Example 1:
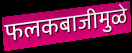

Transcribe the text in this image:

फलकबाजीमुळे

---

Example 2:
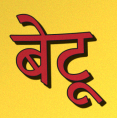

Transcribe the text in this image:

बेटू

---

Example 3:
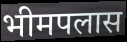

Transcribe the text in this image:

भीमपलास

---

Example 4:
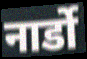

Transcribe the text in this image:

नार्डो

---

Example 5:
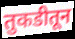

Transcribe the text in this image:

तुकडीतून